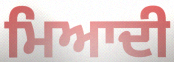
ਮਿਆਦੀ